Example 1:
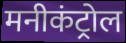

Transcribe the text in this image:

मनीकंट्रोल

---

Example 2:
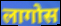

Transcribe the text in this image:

लागोस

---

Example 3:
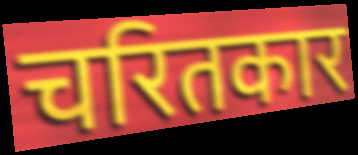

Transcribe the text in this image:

चरितकार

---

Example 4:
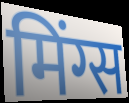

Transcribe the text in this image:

मिंग्स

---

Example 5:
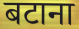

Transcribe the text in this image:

बटाना